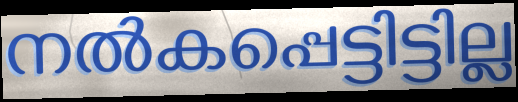
നൽകപ്പെട്ടിട്ടില്ല